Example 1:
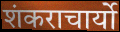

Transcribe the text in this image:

शंकराचार्यो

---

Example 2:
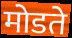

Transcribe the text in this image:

मोडते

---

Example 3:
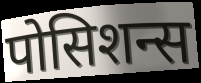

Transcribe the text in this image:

पोसिशन्स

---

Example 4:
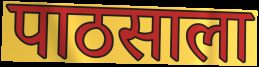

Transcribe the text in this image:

पाठसाला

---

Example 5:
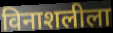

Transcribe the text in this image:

विनाशलीला